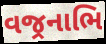
વજ્રનાભિ